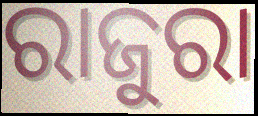
ରାଜୁରା